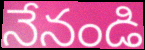
నేనండి